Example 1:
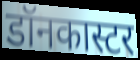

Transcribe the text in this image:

डॉनकास्टर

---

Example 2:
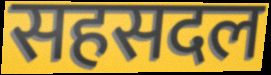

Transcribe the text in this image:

सहसदल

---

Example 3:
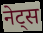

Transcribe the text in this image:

नेट्स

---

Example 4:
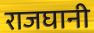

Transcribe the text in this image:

राजघानी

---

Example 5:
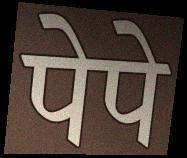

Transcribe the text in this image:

पेपे